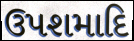
ઉપશમાદિ